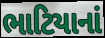
ભાટિયાનાં